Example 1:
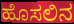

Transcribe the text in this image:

ಹೊಸಲಿನ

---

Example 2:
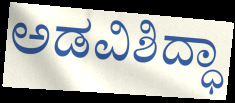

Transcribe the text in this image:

ಅಡವಿಶಿದ್ಧಾ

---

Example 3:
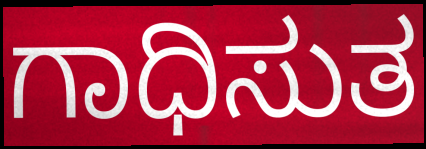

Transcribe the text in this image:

ಗಾಧಿಸುತ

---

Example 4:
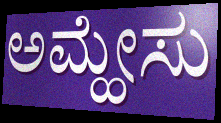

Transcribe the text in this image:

ಅಮ್ಹೇಸು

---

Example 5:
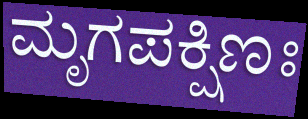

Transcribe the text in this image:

ಮೃಗಪಕ್ಷಿಣಃ